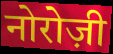
नोरोज़ी